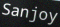
Sanjoy